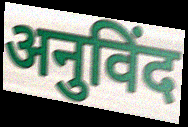
अनुविंद